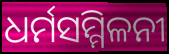
ଧର୍ମସମ୍ମିଳନୀ